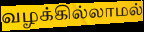
வழக்கில்லாமல்